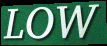
LOW